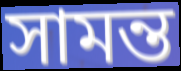
সামন্ত